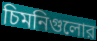
চিমনিগুলোর